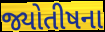
જ્યોતીષના